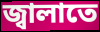
জ্বালাতে